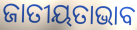
ଜାତୀୟତାଭାବ